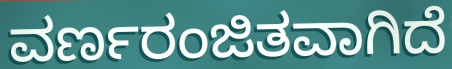
ವರ್ಣರಂಜಿತವಾಗಿದೆ